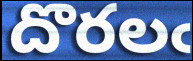
దొరలఁ